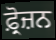
ਫ਼੍ਰੋਜ਼ਨ